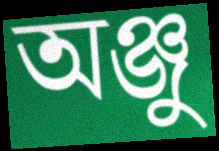
অঞ্জু